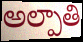
అల్పాతి